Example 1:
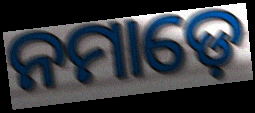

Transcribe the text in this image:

ନମାଡ଼େ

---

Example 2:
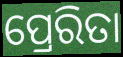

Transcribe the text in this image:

ପ୍ରେରିତା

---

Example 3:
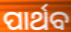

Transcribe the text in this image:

ପାର୍ଥବ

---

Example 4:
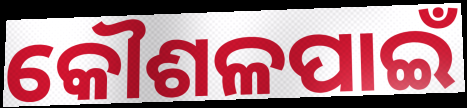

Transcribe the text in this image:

କୌଶଳପାଇଁ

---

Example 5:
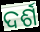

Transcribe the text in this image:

ଦର୍ଶ